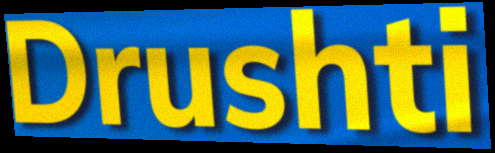
Drushti